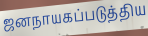
ஜனநாயகப்படுத்திய